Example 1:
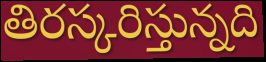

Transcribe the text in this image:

తిరస్కరిస్తున్నది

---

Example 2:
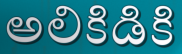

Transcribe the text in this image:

అలికిడికి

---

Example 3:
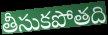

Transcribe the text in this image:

తీసుకపోతది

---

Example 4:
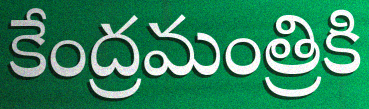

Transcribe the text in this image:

కేంద్రమంత్రికి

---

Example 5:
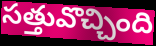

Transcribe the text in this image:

సత్తువొచ్చింది